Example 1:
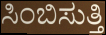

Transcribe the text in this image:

ಸಿಂಬಿಸುತ್ತಿ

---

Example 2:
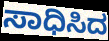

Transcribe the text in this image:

ಸಾಧಿಸಿದ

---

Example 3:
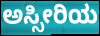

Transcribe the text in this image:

ಅಸ್ಸೀರಿಯ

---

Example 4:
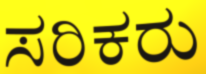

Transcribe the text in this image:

ಸರಿಕರು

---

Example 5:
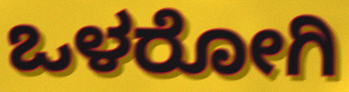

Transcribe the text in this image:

ಒಳರೋಗಿ